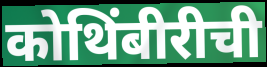
कोथिंबीरीची